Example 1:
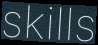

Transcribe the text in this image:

skills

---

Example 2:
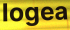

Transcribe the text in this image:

logea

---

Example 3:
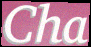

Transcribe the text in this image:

Cha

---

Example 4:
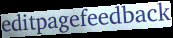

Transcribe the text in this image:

editpagefeedback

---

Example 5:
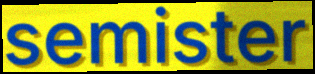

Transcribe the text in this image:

semister